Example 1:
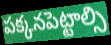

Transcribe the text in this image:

పక్కనపెట్టాల్సి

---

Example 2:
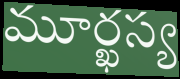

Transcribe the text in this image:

మూర్ఖస్య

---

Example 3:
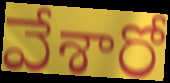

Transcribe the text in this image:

వేశారో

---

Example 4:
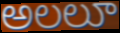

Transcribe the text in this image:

అలలూ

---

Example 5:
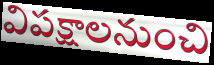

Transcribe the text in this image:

విపక్షాలనుంచి